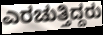
ಎರಚುತ್ತಿದ್ದರು